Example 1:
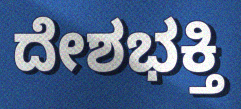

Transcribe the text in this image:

ದೇಶಭಕ್ತಿ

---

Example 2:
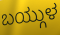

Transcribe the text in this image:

ಬಯ್ಗುಳ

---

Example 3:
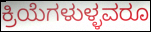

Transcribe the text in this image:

ಕ್ರಿಯೆಗಳುಳ್ಳವರೂ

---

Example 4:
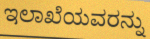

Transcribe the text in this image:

ಇಲಾಖೆಯವರನ್ನು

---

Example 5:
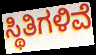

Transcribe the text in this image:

ಸ್ಥಿತಿಗಳಿವೆ